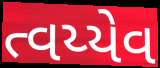
ત્વય્યેવ